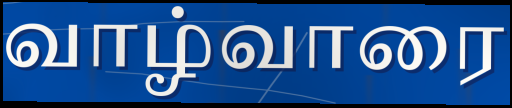
வாழ்வாரை